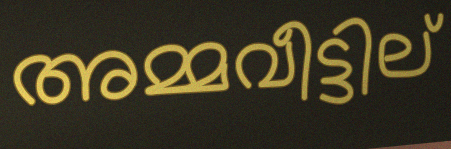
അമ്മവീട്ടില്